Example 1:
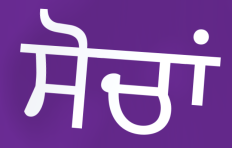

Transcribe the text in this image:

ਸੋਚਾਂ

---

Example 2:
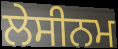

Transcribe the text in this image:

ਲੇਸੀਨਮ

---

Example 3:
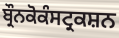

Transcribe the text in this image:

ਬ੍ਰੌਨਕੋਕੰਸਟ੍ਰਕਸ਼ਨ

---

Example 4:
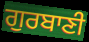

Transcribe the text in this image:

ਗੁਰਬਾਣੀ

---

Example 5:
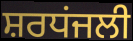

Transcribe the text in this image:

ਸ਼ਰਧਂਜਲੀ